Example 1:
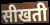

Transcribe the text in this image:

सीखती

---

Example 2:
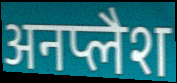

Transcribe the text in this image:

अनप्लैश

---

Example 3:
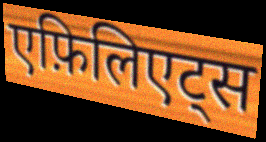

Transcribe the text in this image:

एफ़िलिएट्स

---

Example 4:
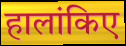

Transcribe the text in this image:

हालांकिए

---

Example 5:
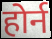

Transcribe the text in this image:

होर्न